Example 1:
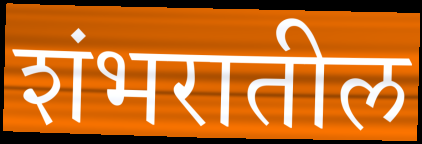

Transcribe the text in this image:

शंभरातील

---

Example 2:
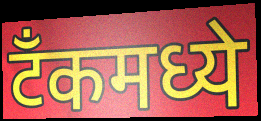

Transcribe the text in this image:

टॅंकमध्ये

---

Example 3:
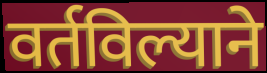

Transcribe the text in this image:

वर्तविल्याने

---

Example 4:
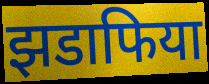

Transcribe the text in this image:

झडाफिया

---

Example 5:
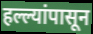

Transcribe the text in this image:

हल्ल्यांपासून